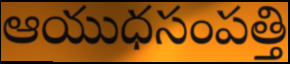
ఆయుధసంపత్తి